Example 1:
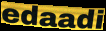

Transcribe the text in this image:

edaadi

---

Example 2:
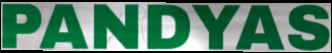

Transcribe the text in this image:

PANDYAS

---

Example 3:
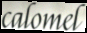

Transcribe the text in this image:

calomel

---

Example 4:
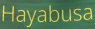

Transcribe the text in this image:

Hayabusa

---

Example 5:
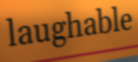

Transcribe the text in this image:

laughable